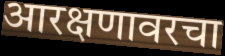
आरक्षणावरचा